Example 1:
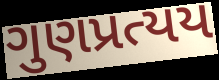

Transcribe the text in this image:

ગુણપ્રત્યય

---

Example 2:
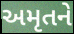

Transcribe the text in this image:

અમૃતને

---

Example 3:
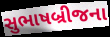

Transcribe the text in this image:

સુભાષબ્રીજના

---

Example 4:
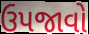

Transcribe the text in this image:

ઉપજાવો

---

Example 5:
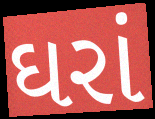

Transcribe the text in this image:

ઘરાં